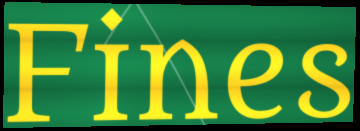
Fines